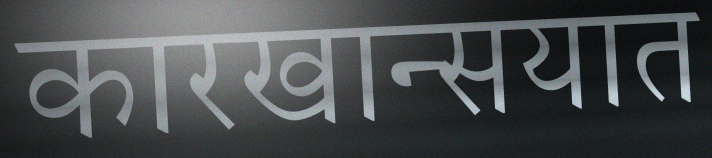
कारखान्सयात